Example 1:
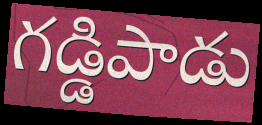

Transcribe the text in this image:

గడ్డిపాడు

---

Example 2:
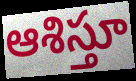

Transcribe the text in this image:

ఆశిస్తూ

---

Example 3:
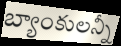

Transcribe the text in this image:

బ్యాంకులన్నీ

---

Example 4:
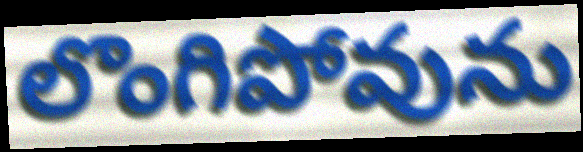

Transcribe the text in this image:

లొంగిపోవును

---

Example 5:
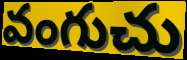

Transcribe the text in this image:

వంగుచు